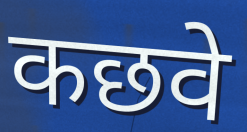
कछवे